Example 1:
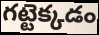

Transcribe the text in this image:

గట్టెక్కడం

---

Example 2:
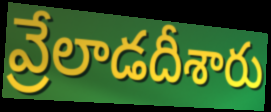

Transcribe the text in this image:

వ్రేలాడదీశారు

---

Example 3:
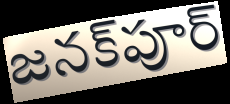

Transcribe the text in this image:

జనక్‌పూర్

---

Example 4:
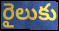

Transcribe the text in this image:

రైలుకు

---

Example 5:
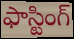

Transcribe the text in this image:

ఫాస్టింగ్